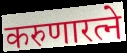
करुणारत्ने